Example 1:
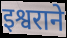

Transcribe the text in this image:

इश्वराने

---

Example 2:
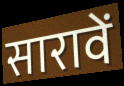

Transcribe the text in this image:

सारावें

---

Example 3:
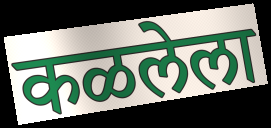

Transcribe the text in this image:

कळलेला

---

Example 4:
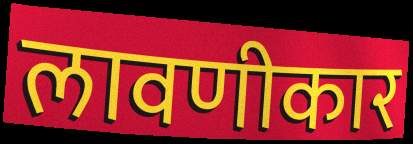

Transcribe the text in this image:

लावणीकार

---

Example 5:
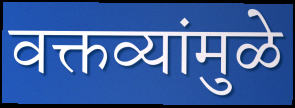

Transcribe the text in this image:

वक्तव्यांमुळे